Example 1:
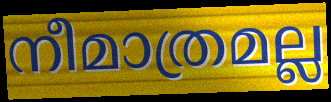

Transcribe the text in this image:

നീമാത്രമല്ല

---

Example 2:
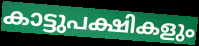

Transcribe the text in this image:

കാട്ടുപക്ഷികളും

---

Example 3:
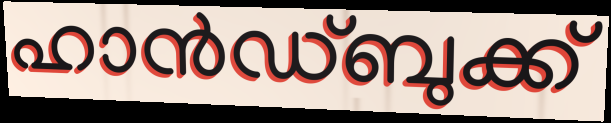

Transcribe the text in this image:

ഹാൻഡ്ബുക്ക്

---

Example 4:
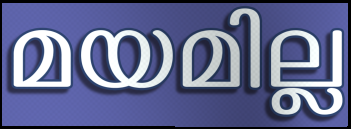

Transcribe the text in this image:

മയമില്ല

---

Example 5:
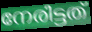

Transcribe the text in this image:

നേരിട്ടത്